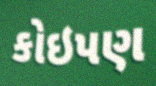
કોઇપણ